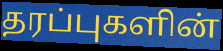
தரப்புகளின்